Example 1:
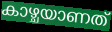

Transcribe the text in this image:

കാഴ്ചയാണത്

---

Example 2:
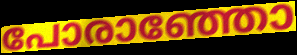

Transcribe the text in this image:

പോരാഞ്ഞോ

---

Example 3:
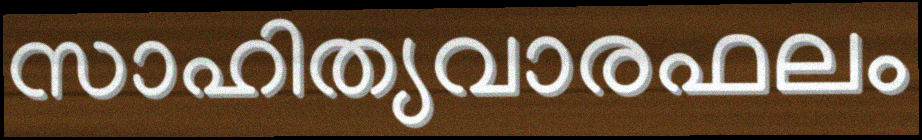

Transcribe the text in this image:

സാഹിത്യവാരഫലം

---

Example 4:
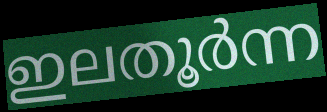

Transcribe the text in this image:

ഇലതൂർന്ന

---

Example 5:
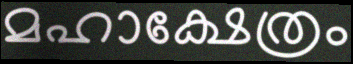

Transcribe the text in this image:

മഹാക്ഷേത്രം